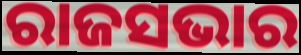
ରାଜସଭାର